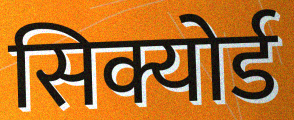
सिक्योर्ड